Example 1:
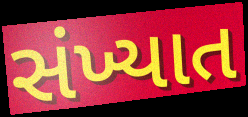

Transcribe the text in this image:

સંખ્યાત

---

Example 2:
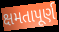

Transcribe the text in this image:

ક્ષમતાપૂર્ણ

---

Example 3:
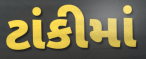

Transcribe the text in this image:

ટાંકીમાં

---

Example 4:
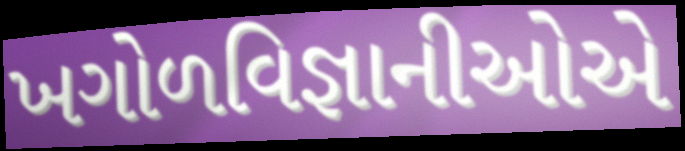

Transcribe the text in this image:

ખગોળવિજ્ઞાનીઓએ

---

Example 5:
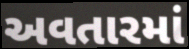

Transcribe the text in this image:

અવતારમાં